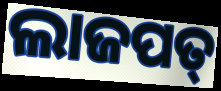
ଲାଜପତ୍